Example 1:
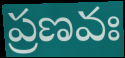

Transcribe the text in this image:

ప్రణవః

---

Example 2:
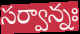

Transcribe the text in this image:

సర్వాన్నః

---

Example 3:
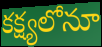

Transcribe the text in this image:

కక్ష్యలోనూ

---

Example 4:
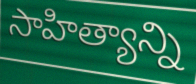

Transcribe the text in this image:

సాహిత్యాన్ని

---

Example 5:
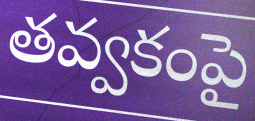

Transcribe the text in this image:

తవ్వకంపై